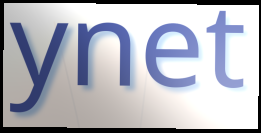
ynet